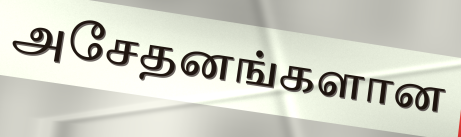
அசேதனங்களான